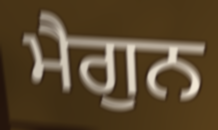
ਮੈਗੁਨ